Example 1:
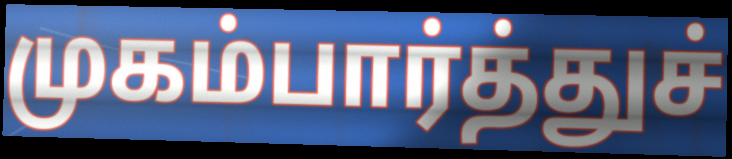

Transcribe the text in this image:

முகம்பார்த்துச்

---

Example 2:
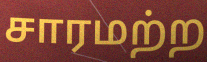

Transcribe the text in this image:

சாரமற்ற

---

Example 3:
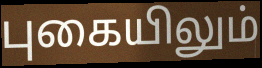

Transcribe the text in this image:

புகையிலும்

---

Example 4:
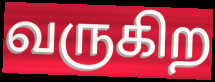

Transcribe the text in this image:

வருகிற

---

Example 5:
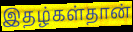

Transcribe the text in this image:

இதழ்கள்தான்